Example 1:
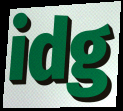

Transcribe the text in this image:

idg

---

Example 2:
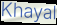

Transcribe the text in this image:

Khayal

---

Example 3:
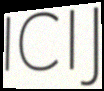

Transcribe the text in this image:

ICIJ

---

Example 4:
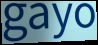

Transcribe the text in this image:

gayo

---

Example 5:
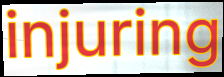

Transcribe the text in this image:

injuring